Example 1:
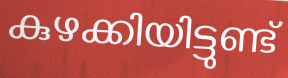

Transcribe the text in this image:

കുഴക്കിയിട്ടുണ്ട്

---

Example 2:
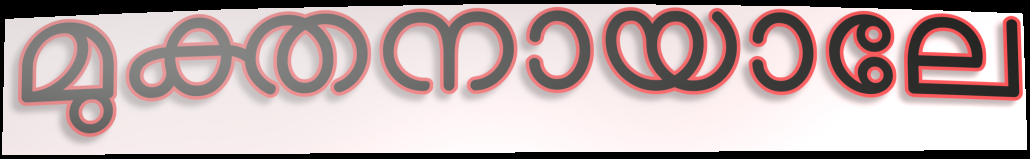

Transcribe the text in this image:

മുക്തനായാലേ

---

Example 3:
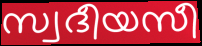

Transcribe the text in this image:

സ്വദീയസീ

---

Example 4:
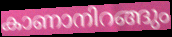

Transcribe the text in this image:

കാണാനിറങ്ങും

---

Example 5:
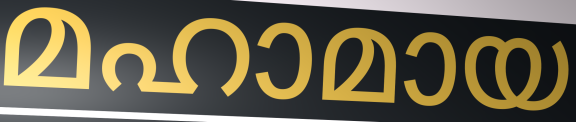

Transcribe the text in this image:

മഹാമായ